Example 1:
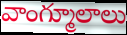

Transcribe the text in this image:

వాంగ్మూలాలు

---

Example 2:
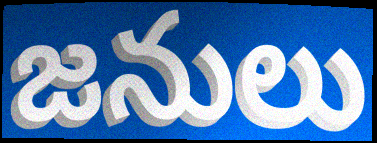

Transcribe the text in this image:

జనులు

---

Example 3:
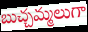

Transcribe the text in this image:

బుచ్చమ్మలుగా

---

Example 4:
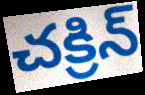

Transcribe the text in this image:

చక్రిన్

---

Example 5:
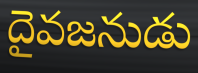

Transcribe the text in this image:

దైవజనుడు